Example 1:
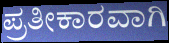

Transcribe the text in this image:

ಪ್ರತೀಕಾರವಾಗಿ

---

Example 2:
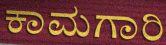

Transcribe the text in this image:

ಕಾಮಗಾರಿ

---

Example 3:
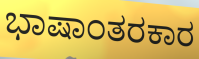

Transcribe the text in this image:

ಭಾಷಾಂತರಕಾರ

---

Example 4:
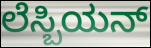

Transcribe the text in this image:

ಲೆಸ್ಬಿಯನ್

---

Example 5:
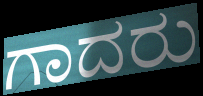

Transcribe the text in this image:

ಗಾದರು